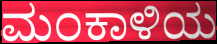
ಮಂಕಾಳಿಯ